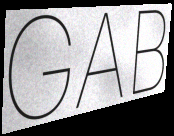
GAB